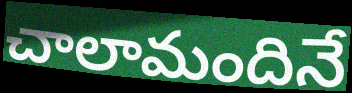
చాలామందినే